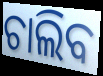
ଚାଲିବ